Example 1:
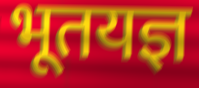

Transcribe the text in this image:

भूतयज्ञ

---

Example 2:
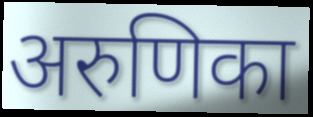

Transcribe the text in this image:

अरुणिका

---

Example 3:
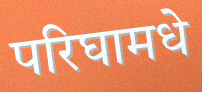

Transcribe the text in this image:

परिघामधे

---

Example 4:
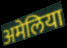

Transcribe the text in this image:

अमेलिया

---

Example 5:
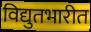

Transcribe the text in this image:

विद्युतभारीत